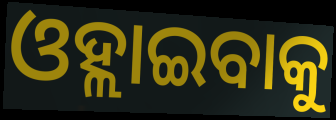
ଓହ୍ଲାଇବାକୁ